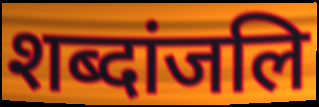
शब्दांजलि